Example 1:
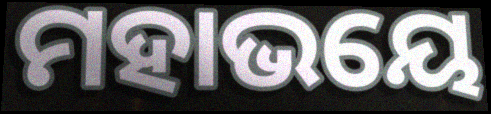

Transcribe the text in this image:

ମହାଭୟେ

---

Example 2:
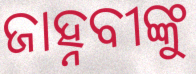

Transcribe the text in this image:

ଜାହ୍ନବୀଙ୍କୁ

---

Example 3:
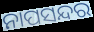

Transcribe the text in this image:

ନାପସନ୍ଦର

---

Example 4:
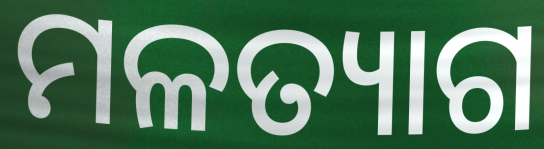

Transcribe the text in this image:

ମଳତ୍ୟାଗ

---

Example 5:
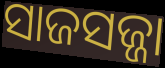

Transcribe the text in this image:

ସାଜସଜ୍ଜା